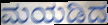
ಮಯಡಿದ